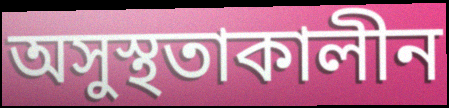
অসুস্থতাকালীন